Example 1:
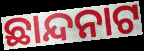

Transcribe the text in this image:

ଛାନ୍ଦନାଟ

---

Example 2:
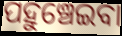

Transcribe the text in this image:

ପହୁଞ୍ଚେଇବା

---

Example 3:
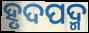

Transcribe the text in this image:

ହୃଦପଦ୍ମ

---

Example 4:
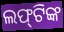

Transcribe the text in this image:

ଲଫ୍‌ଟିଙ୍କ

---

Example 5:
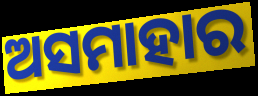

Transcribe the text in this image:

ଅସମାହାର